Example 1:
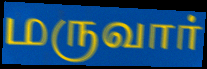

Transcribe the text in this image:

மருவார்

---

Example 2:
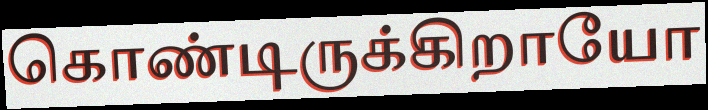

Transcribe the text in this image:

கொண்டிருக்கிறாயோ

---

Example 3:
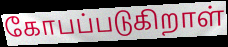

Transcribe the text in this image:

கோபப்படுகிறாள்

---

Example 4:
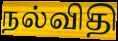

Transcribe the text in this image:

நல்விதி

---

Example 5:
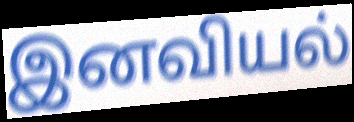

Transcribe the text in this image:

இனவியல்